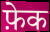
फ़ेक